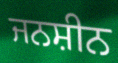
ਜਨਸ਼ੀਨ